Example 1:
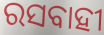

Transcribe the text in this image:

ରସବାହୀ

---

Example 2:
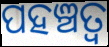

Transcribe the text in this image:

ପହଞ୍ଚତ୍ବ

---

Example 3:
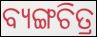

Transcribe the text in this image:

ବ୍ୟଙ୍ଗଚିତ୍ର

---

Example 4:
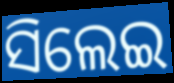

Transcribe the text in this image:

ସିଲେଇ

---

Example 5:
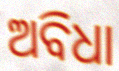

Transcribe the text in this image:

ଅବିଧା